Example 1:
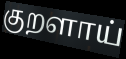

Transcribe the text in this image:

குறளாய்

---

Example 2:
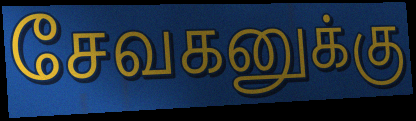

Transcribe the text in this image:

சேவகனுக்கு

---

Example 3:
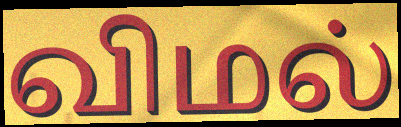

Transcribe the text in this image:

விமல்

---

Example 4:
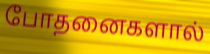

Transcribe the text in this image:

போதனைகளால்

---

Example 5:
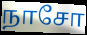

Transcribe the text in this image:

நாசோ